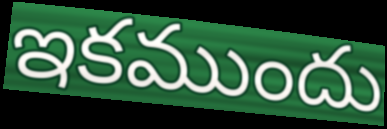
ఇకముందు